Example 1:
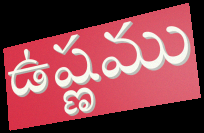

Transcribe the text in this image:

ఉష్ణము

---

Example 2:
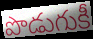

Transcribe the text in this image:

పొడుగుకీ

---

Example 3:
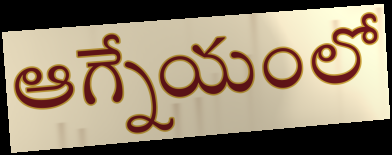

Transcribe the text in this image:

ఆగ్నేయంలో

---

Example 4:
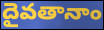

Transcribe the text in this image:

దైవతానాం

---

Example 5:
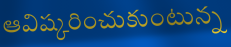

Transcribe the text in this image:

ఆవిష్కరించుకుంటున్న